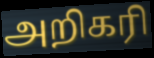
அறிகரி